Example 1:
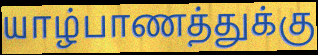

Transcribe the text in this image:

யாழ்பாணத்துக்கு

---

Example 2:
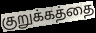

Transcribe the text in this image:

குறுக்கத்தை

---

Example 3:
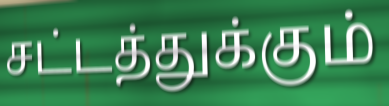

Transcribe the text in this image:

சட்டத்துக்கும்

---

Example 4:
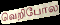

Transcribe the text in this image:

வெறிபோல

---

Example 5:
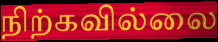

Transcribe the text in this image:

நிற்கவில்லை